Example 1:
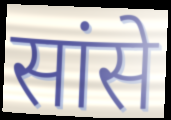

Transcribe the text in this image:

सांसे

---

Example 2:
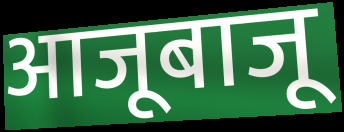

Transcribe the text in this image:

आजूबाजू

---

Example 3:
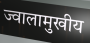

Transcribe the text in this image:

ज्वालामुखीय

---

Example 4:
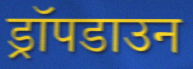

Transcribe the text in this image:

ड्रॉपडाउन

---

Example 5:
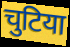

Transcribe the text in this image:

चुटिया